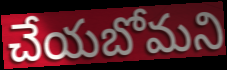
చేయబోమని